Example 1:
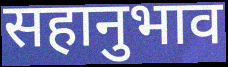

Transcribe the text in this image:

सहानुभाव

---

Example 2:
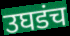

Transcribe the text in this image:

उघडंच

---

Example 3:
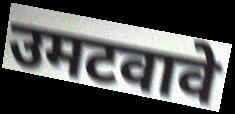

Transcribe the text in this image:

उमटवावे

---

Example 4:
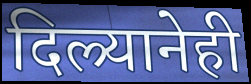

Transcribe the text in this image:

दिल्यानेही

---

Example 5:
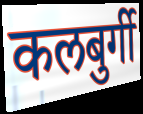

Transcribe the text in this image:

कलबुर्गी